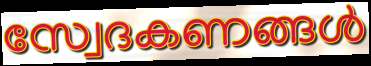
സ്വേദകണങ്ങൾ